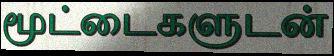
மூட்டைகளுடன்